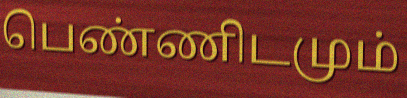
பெண்ணிடமும்